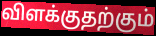
விளக்குதற்கும்